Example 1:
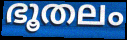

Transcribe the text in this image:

ഭൂതലം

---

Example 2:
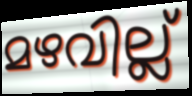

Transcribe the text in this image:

മഴവില്ല്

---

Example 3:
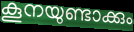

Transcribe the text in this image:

കൂനയുണ്ടാക്കും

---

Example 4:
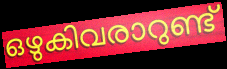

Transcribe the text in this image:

ഒഴുകിവരാറുണ്ട്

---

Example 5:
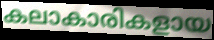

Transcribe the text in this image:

കലാകാരികളായ